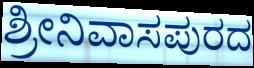
ಶ್ರೀನಿವಾಸಪುರದ